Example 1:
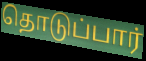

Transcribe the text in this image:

தொடுப்பார்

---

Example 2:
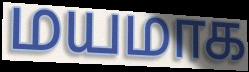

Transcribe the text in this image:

மயமாக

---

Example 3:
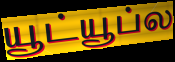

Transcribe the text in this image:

யூட்யூப்ல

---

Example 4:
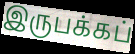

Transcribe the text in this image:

இருபக்கப்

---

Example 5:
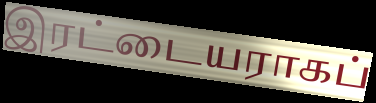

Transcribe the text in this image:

இரட்டையராகப்